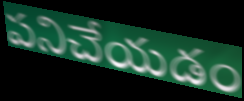
పనిచేయడం